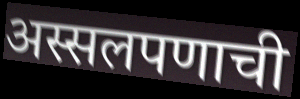
अस्सलपणाची